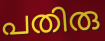
പതിരു